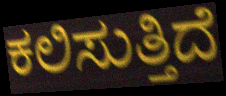
ಕಲಿಸುತ್ತಿದೆ